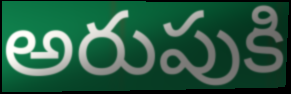
అరుపుకి